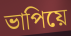
ভাপিয়ে